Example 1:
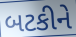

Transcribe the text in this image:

બટકીને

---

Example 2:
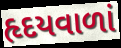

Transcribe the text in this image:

હૃદયવાળાં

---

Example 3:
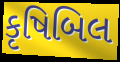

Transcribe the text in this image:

કૃષિબિલ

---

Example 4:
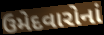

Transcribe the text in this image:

ઉમેદવારોનાં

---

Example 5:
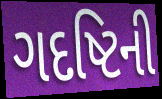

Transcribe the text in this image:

ગદષ્ટિની